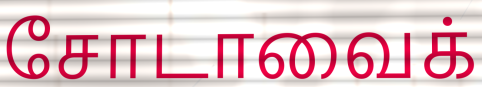
சோடாவைக்